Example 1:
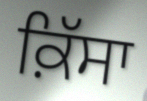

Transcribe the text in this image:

ਕ਼ਿੱਸਾ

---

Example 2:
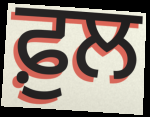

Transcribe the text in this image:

ਫ਼ੁਲ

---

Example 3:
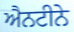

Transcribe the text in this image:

ਐਨਟੀਨੇ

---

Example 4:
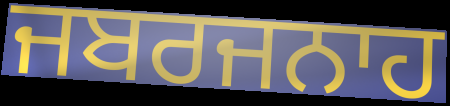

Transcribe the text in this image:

ਜਬਰਜਨਾਹ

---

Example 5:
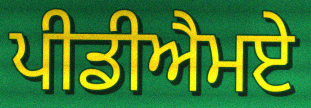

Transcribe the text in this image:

ਪੀਡੀਐਮਏ